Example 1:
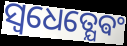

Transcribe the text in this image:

ସ୍ଵଧେତ୍ଯେଵଂ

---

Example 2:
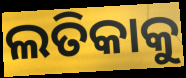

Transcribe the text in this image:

ଲତିକାକୁ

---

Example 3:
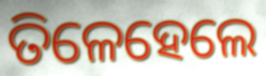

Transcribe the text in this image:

ତିଳେହେଲେ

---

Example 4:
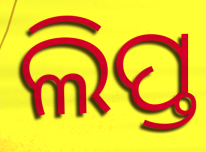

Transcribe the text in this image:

ଲିପ୍ତ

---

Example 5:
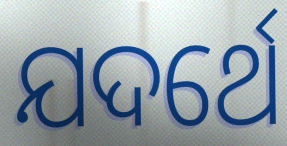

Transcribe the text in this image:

ଯଦର୍ଥେ